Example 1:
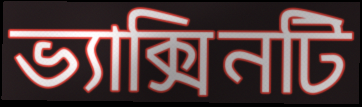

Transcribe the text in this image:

ভ্যাক্সিনটি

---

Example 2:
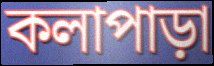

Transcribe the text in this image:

কলাপাড়া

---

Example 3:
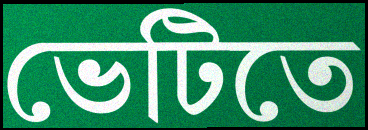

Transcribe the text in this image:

ভেটিতে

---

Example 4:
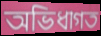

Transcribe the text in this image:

অভিধাগত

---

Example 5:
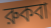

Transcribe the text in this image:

রুকবা